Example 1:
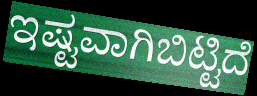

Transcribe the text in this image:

ಇಷ್ಟವಾಗಿಬಿಟ್ಟಿದೆ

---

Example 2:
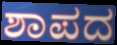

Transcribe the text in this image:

ಶಾಪದ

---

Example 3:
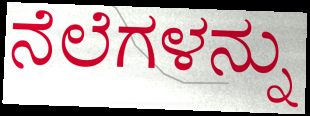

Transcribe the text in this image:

ನೆಲೆಗಳನ್ನು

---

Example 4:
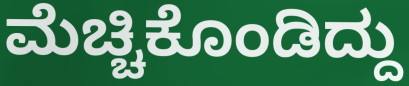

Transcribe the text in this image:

ಮೆಚ್ಚಿಕೊಂಡಿದ್ದು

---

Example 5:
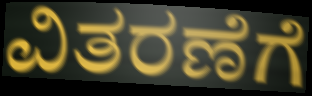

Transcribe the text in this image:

ವಿತರಣೆಗೆ